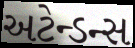
અટેન્ડન્સ